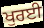
ਖੁਰਈ